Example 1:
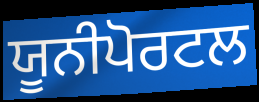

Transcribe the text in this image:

ਯੂਨੀਪੋਰਟਲ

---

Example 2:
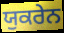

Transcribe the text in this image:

ਯੁਕਰੇਨ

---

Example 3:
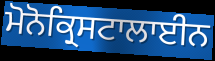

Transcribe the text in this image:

ਮੋਨੋਕ੍ਰਿਸਟਾਲਾਈਨ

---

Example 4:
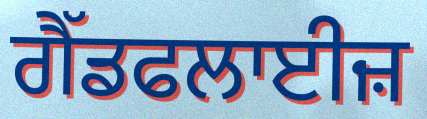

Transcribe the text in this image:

ਗੈੱਡਫਲਾਈਜ਼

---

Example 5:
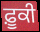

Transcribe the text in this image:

ਫ਼ੂਕੀ